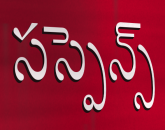
సస్పెన్స్